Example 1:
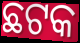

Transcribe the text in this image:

ଛଟକ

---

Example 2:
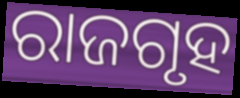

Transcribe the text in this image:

ରାଜଗୃହ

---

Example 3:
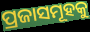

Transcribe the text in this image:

ପ୍ରଜାସମୂହକୁ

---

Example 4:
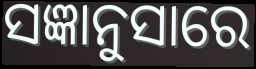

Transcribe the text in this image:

ସଜ୍ଞାନୁସାରେ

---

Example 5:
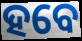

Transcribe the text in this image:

ହବେ